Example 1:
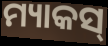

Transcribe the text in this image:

ମ୍ୟାକସ୍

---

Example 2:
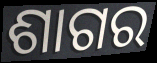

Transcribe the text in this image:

ଶାଗର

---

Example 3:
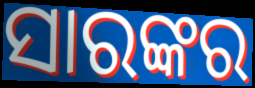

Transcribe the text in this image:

ସାରଙ୍କର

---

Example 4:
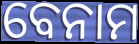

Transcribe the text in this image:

ବେନାମ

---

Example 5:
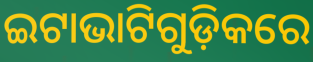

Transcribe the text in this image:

ଇଟାଭାଟିଗୁଡ଼ିକରେ